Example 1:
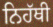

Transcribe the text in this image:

ਨਿਹੱਥੀ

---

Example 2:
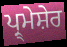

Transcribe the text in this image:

ਪ੍ਰ੍ਮੇਸ਼ੇਰ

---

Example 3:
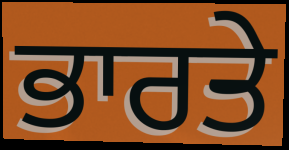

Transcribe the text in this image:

ਭਾਰਤੇ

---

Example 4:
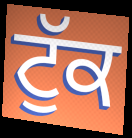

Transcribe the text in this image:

ਟੁੱਕ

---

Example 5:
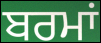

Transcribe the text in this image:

ਬਰਮਾਂ